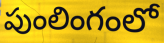
పుంలింగంలో